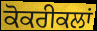
ਕੋਕਰੀਕਲਾਂ